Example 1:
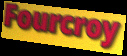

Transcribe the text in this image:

Fourcroy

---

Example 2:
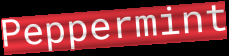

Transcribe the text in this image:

Peppermint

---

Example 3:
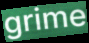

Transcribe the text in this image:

grime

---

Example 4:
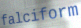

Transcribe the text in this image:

falciform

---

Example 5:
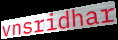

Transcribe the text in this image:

vnsridhar